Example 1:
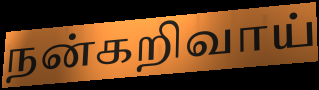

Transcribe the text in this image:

நன்கறிவாய்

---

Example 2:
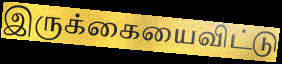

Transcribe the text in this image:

இருக்கையைவிட்டு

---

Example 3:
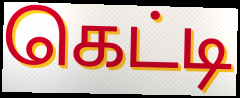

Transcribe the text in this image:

கெட்டி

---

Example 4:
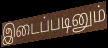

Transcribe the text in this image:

இடைப்படினும்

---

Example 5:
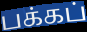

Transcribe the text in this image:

பக்கப்